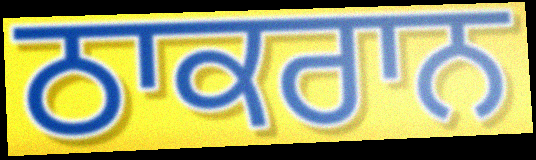
ਠਾਕਰਾਨ